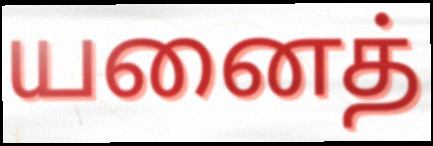
யனைத்